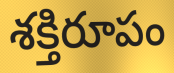
శక్తిరూపం